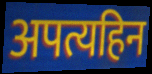
अपत्यहिन